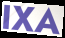
IXA